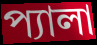
প্যালা